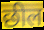
छील